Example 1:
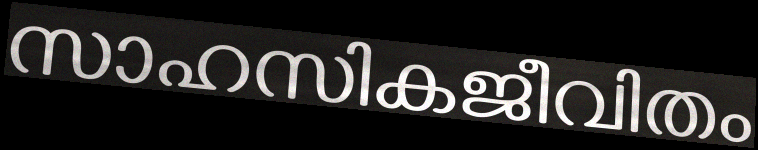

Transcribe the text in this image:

സാഹസികജീവിതം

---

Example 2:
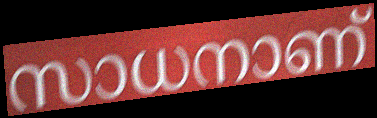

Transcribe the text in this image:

സാധനാണ്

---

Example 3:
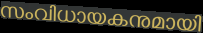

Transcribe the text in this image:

സംവിധായകനുമായി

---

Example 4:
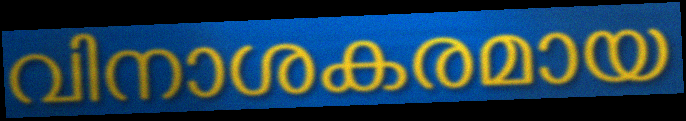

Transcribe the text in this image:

വിനാശകരമായ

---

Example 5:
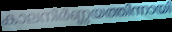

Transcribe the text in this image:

കാലനിർണ്ണയത്തിന്നായി